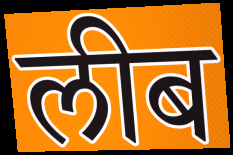
लीब